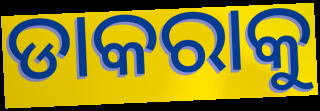
ଡାକରାକୁ